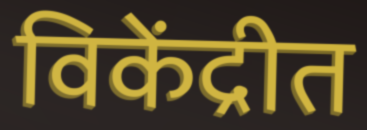
विकेंद्रीत